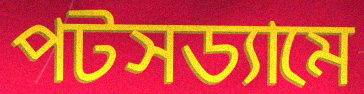
পটসড্যামে